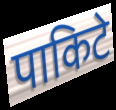
पाकिटे